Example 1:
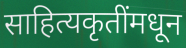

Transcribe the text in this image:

साहित्यकृतींमधून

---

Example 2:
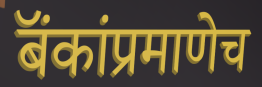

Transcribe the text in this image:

बॅंकांप्रमाणेच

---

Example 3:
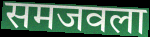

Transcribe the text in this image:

समजवला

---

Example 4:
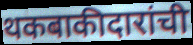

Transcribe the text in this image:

थकबाकीदारांची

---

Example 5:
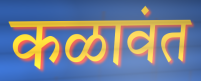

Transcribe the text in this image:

कळावंत